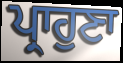
ਪ੍ਰਾਹੁਣਾ